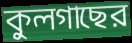
কুলগাছের